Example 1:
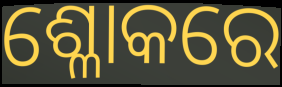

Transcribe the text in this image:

ଶ୍ଳୋକରେ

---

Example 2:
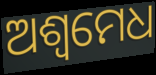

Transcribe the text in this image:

ଅଶ୍ଵମେଧ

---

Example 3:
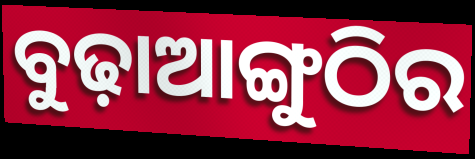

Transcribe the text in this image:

ବୁଢ଼ାଆଙ୍ଗୁଠିର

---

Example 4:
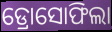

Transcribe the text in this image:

ଡ୍ରୋସୋଫିଲା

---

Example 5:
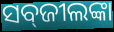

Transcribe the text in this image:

ସବ୍‌ଜୀଲଙ୍କା